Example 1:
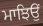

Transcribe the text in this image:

ਮਾਝਿਉਂ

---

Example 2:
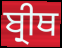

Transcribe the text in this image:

ਬ੍ਰੀਥ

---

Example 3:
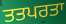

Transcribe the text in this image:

ਤਤਪਰਤਾ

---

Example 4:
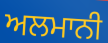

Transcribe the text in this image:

ਅਲਮਾਨੀ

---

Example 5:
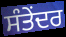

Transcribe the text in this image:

ਸੰਤੇਂਦਰ